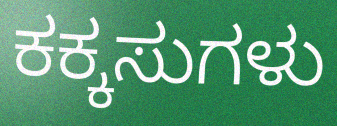
ಕಕ್ಕಸುಗಳು